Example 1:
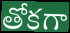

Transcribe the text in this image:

తోకగా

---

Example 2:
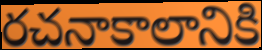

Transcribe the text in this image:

రచనాకాలానికి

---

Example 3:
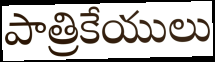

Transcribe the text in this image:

పాత్రికేయులు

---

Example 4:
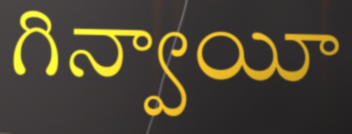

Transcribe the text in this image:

గిన్వాయీ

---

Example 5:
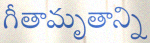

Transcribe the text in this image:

గీతామృతాన్ని